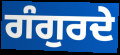
ਗੰਗੁਰਦੇ